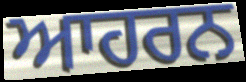
ਆਹਰਨ